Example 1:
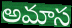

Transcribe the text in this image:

అమాస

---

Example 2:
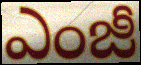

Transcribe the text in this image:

ఎంజీ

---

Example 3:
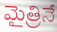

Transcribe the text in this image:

మైత్రినే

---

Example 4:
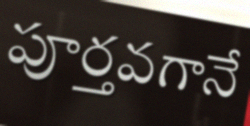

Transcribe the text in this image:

పూర్తవగానే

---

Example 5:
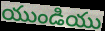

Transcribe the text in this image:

యుండియు